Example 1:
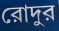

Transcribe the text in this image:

রোদুর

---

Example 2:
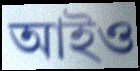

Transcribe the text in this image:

আইও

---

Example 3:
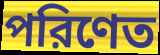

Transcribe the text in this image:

পরিণেত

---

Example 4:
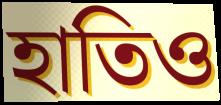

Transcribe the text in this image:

হাতিও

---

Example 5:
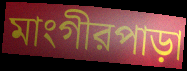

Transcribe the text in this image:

মাংগীরপাড়া